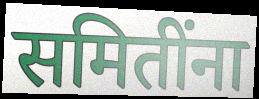
समितींना